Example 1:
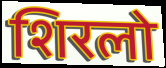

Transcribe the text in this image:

शिरलो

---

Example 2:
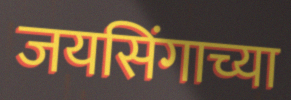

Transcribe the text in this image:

जयसिंगाच्या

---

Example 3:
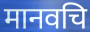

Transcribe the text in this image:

मानवचि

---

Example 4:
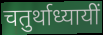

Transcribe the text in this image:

चतुर्थाध्यायीं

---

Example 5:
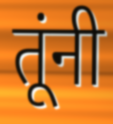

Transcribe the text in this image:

तूंनी